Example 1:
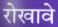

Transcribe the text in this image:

रोखावे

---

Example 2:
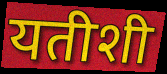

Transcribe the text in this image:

यतीशी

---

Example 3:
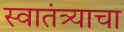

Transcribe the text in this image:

स्‍वातंत्र्याचा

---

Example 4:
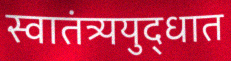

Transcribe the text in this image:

स्वातंत्र्ययुद्धात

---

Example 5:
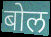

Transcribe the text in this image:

बोल